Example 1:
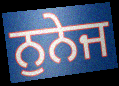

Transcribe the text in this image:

ਨੁਨੇਜ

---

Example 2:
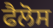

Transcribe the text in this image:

ਫੈਲੋਸ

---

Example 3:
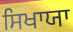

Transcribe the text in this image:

ਸਿਖਾਯਾ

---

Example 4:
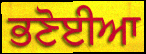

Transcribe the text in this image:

ਭਣੋਈਆ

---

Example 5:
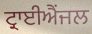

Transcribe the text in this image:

ਟ੍ਰਾਈਐਂਜਲ